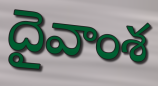
దైవాంశ